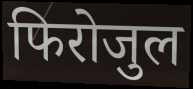
फिरोजुल